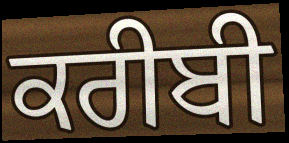
ਕਰੀਬੀ